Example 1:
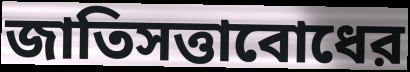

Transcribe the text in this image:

জাতিসত্তাবোধের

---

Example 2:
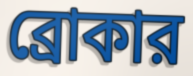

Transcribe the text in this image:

ব্রোকার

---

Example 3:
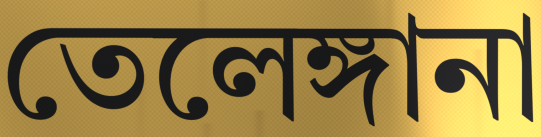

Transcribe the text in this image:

তেলেঙ্গানা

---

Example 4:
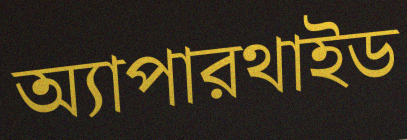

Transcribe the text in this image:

অ্যাপারথাইড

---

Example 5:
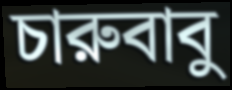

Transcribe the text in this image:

চারুবাবু